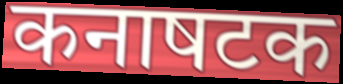
कनाषटक